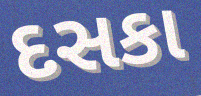
દસકા